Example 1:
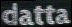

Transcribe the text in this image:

datta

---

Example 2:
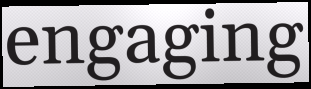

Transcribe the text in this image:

engaging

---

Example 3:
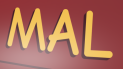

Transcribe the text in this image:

MAL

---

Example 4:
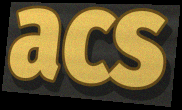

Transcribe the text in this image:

acs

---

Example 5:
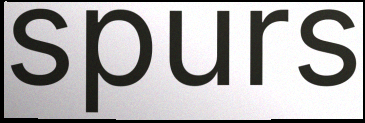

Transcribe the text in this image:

spurs